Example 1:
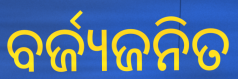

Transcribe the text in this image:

ବର୍ଜ୍ୟଜନିତ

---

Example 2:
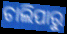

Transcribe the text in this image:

ଚାଲିପାରୁ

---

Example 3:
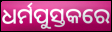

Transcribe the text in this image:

ଧର୍ମପୁସ୍ତକରେ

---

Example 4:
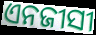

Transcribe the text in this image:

ଏନଜୀସୀ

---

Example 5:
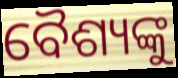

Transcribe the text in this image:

ବୈଶ୍ୟଙ୍କୁ